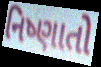
નિષ્ણાતો